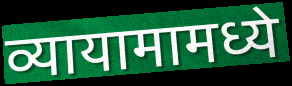
व्यायामामध्ये